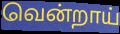
வென்றாய்